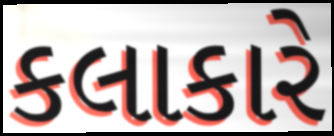
કલાકારે